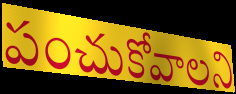
పంచుకోవాలని